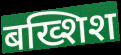
बख्शिश